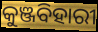
କୁଞ୍ଜବିହାରୀ